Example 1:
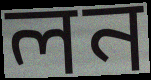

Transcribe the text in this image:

লন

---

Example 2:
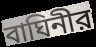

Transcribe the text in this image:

বাঘিনীর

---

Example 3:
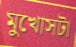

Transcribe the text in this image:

মুখোসটা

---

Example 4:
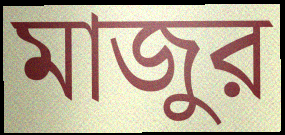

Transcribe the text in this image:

মাজুর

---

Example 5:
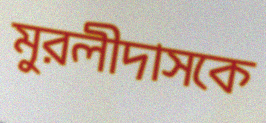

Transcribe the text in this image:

মুরলীদাসকে